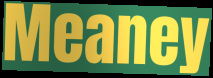
Meaney